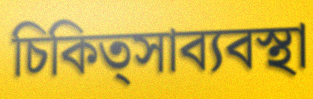
চিকিত্সাব্যবস্থা